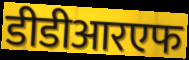
डीडीआरएफ